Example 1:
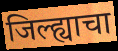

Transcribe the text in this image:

जिल्ह्याचा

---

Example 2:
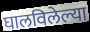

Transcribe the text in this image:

घालविलेल्या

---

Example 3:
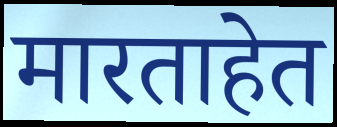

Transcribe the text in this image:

मारताहेत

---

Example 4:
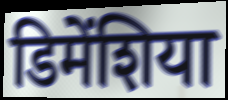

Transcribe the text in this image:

डिमेंशिया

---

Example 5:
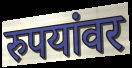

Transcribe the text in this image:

रुपयांवर